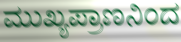
ಮುಖ್ಯಪ್ರಾಣನಿಂದ